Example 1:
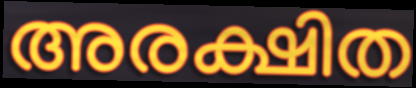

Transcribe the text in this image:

അരക്ഷിത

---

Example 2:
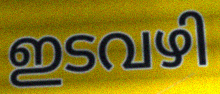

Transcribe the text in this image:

ഇടവഴി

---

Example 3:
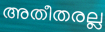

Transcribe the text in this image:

അതീതരല്ല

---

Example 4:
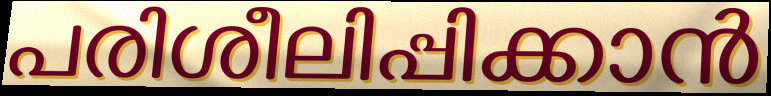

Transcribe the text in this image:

പരിശീലിപ്പിക്കാൻ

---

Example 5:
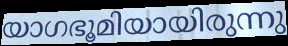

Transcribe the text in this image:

യാഗഭൂമിയായിരുന്നു